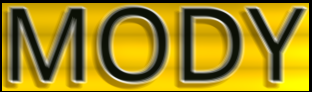
MODY